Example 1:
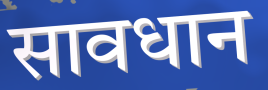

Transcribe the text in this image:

सावधान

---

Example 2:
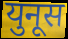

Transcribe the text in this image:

युनूस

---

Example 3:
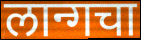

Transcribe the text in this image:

लान्गचा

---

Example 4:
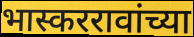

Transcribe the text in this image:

भास्कररावांच्या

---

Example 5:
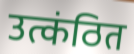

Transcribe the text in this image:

उत्कंठित